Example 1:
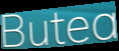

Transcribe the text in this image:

Butea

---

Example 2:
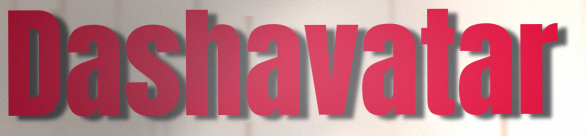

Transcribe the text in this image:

Dashavatar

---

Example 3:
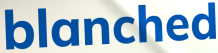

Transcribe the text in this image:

blanched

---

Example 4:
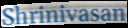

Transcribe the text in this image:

Shrinivasan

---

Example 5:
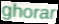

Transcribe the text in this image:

ghorar